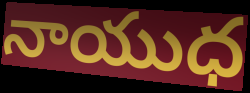
నాయుధ